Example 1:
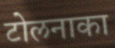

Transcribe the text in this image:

टोलनाका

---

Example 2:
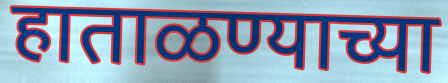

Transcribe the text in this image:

हाताळण्याच्या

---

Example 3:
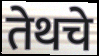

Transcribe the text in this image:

तेथचे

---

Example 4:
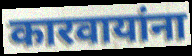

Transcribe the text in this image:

कारवायांना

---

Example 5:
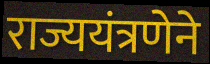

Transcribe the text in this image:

राज्ययंत्रणेने